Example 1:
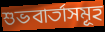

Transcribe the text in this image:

শুভবাৰ্তাসমূহ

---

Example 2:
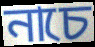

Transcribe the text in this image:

নাচে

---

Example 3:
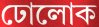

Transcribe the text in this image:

ঢোলোক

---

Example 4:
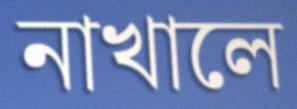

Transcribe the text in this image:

নাখালে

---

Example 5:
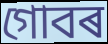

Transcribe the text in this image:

গোবৰ